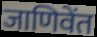
जाणिवेंत